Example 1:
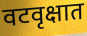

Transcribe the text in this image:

वटवृक्षात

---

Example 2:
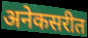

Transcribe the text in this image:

अनेकसरीत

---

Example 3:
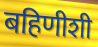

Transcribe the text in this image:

बहिणीशी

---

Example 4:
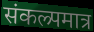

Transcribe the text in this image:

संकल्पमात्र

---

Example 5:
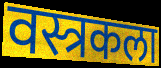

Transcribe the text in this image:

वस्त्रकला